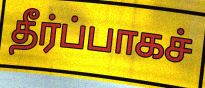
தீர்ப்பாகச்